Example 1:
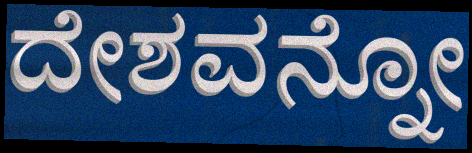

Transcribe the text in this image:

ದೇಶವನ್ನೋ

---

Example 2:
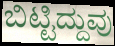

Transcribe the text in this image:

ಬಿಟ್ಟಿದ್ದುವು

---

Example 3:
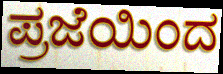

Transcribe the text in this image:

ಪ್ರಜೆಯಿಂದ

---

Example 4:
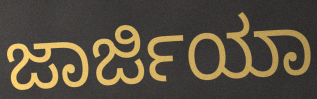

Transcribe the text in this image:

ಜಾರ್ಜಿಯಾ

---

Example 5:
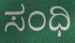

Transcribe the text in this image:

ಸಂಧಿ